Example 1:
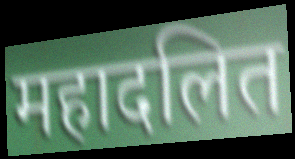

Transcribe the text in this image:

महादलित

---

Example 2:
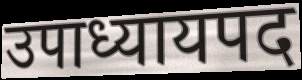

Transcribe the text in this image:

उपाध्यायपद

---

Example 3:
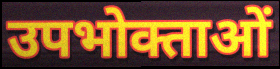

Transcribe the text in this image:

उपभोक्ताओं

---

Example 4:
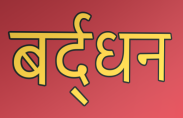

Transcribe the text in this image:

बर्द्धन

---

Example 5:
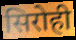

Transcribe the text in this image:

सिरोही